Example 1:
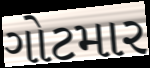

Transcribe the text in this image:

ગોટમાર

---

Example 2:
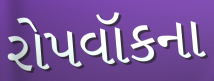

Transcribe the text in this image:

રોપવૉકના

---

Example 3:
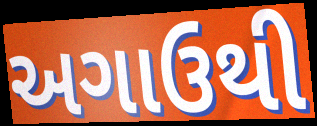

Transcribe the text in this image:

અગાઉથી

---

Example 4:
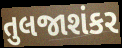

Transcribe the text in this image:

તુલજાશંકર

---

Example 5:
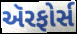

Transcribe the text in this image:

ઍરફોર્સ